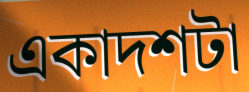
একাদশটা